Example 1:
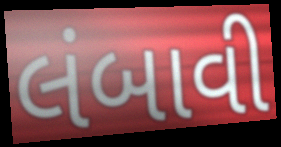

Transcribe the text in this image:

લંબાવી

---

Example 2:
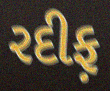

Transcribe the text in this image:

રદીફ઼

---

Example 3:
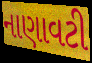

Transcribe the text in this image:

નાણાવટી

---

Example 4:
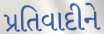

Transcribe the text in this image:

પ્રતિવાદીને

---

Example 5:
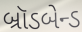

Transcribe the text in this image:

બ્રૉડબેન્ડ